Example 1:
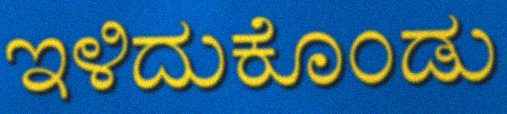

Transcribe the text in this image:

ಇಳಿದುಕೊಂಡು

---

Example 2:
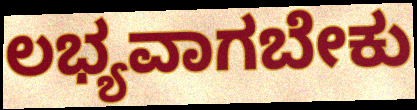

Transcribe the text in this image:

ಲಭ್ಯವಾಗಬೇಕು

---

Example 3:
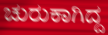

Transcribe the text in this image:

ಚುರುಕಾಗಿದ್ದ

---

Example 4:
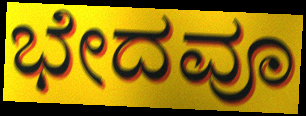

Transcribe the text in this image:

ಭೇದವೂ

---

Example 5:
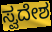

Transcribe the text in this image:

ಸ್ವದೇಶ